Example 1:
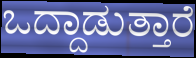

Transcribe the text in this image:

ಒದ್ದಾಡುತ್ತಾರೆ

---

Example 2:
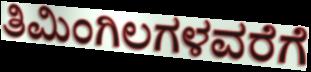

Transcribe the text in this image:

ತಿಮಿಂಗಿಲಗಳವರೆಗೆ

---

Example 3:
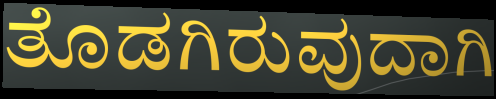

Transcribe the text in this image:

ತೊಡಗಿರುವುದಾಗಿ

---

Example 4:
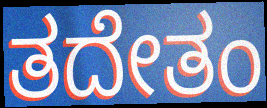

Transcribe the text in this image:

ತದೇತಂ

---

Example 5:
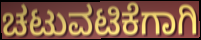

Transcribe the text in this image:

ಚಟುವಟಿಕೆಗಾಗಿ